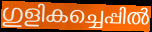
ഗുളികച്ചെപ്പിൽ